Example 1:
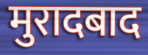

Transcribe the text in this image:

मुरादबाद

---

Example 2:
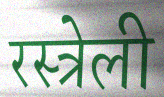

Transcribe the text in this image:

रस्त्रेली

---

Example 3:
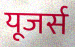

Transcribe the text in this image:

यूजर्स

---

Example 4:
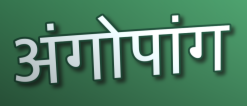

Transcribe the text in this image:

अंगोपांग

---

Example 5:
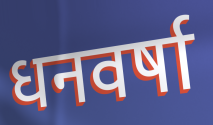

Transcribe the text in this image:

धनवर्षा